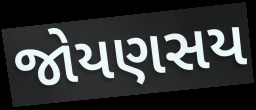
જોયણસય